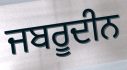
ਜਬਰੂਦੀਨ